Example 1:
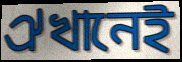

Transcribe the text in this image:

ঐখানেই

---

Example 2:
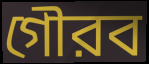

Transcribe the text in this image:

গৌরব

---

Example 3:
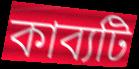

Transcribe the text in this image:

কাব্যটি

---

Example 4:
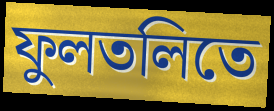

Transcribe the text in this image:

ফুলতলিতে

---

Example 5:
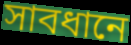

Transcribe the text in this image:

সাবধানে